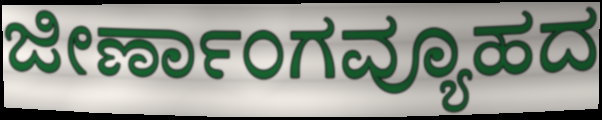
ಜೀರ್ಣಾಂಗವ್ಯೂಹದ